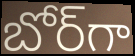
బోర్‌గా